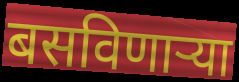
बसविणार्‍या